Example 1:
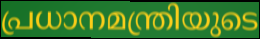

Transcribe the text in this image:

പ്രധാനമന്ത്രിയുടെ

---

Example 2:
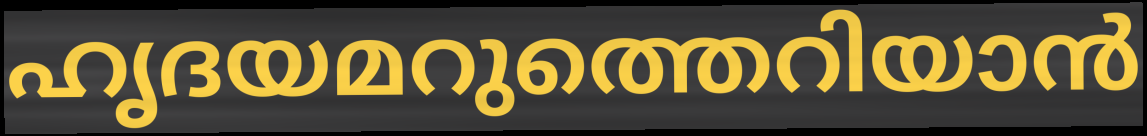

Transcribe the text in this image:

ഹൃദയമറുത്തെറിയാൻ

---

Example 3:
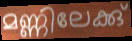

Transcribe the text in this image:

മണ്ണിലേക്കു്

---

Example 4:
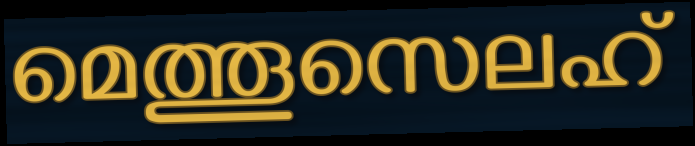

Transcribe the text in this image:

മെത്തൂസെലഹ്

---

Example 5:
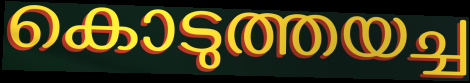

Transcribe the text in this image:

കൊടുത്തയച്ച